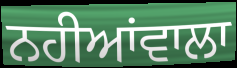
ਨਹੀਆਂਵਾਲਾ